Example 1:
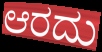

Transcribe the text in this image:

ಆರದು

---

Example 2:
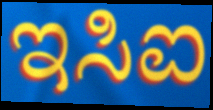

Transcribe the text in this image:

ಇಸಿಐ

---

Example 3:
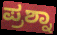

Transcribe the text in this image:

ಪ್ರಶ್ನಾ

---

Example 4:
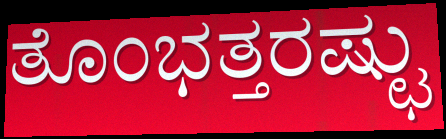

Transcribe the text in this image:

ತೊಂಭತ್ತರಷ್ಟು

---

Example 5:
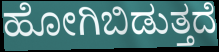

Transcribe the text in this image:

ಹೋಗಿಬಿಡುತ್ತದೆ